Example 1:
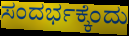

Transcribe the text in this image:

ಸಂದರ್ಭಕ್ಕೆಂದು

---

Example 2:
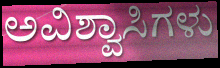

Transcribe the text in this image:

ಅವಿಶ್ವಾಸಿಗಳು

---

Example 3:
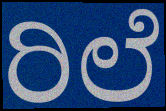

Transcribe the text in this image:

ರಿಲೆ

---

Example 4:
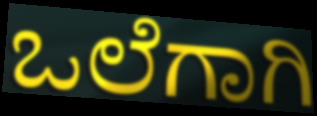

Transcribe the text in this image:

ಒಲೆಗಾಗಿ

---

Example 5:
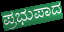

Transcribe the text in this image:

ಪ್ರಭುಪಾದ